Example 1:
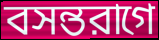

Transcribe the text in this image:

বসন্তরাগে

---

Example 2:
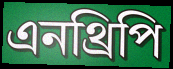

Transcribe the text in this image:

এনথ্রিপি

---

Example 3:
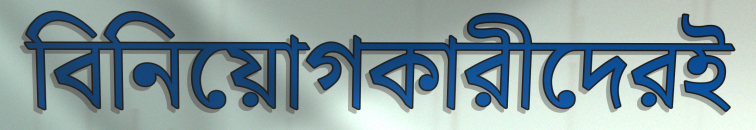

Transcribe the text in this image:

বিনিয়োগকারীদেরই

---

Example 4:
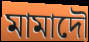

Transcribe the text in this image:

মামাদৌ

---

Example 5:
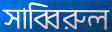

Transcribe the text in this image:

সাব্বিরুল